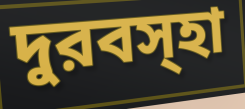
দুরবস্হা